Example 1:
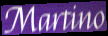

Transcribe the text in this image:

Martino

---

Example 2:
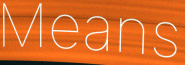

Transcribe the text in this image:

Means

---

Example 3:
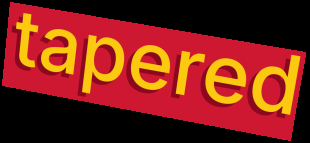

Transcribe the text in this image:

tapered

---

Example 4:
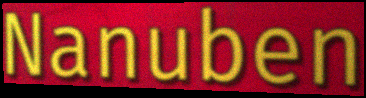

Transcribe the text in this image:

Nanuben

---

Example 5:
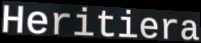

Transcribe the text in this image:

Heritiera